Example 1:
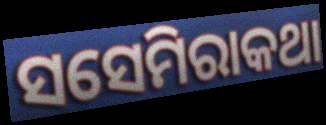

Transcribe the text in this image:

ସସେମିରାକଥା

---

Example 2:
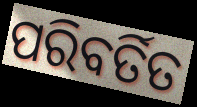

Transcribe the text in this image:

ପରିବର୍ତିତ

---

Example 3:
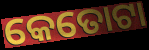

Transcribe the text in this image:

କେତୋଟା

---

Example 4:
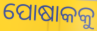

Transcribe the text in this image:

ପୋଷାକକୁ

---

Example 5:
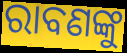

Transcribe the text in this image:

ରାବଣଙ୍କୁ